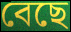
বেছে